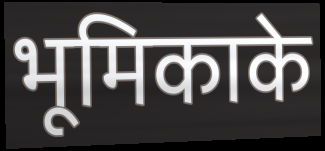
भूमिकाके